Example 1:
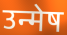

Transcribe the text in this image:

उन्मेष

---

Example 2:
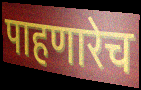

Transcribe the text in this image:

पाहणारेच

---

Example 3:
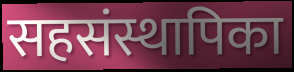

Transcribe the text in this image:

सहसंस्थापिका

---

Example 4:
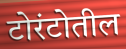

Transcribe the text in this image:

टोरंटोतील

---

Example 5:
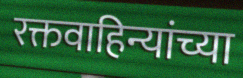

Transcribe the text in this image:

रक्तवाहिन्यांच्या